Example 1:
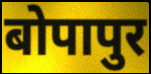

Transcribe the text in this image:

बोपापुर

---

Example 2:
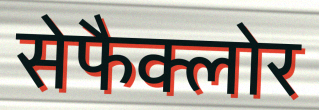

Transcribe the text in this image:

सेफैक्लोर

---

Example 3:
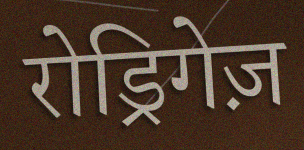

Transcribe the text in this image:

रोड्रिगेज़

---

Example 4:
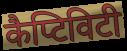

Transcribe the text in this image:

कैप्टिविटी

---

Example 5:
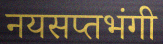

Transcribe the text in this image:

नयसप्तभंगी